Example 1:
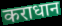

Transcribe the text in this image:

कराधान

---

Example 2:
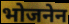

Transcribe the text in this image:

भोजनेन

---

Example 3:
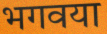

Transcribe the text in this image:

भगवया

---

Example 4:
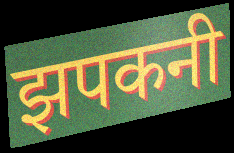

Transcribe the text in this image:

झपकनी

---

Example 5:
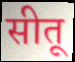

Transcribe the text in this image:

सीतू